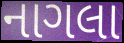
નાગલા